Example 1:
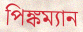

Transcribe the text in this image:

পিঙ্কম্যান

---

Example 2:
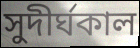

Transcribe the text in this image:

সুদীর্ঘকাল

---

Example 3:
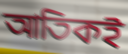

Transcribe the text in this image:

আতিকই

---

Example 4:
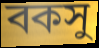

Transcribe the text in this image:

বকসু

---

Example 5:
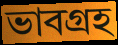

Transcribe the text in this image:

ভাবগ্রহ